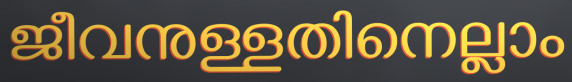
ജീവനുള്ളതിനെല്ലാം